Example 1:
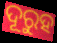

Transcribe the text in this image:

ଦୂରୁହ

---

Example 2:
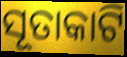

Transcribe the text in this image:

ସୂତାକାଟି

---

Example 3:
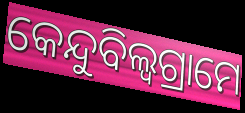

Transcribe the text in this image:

କେନ୍ଦୁବିଲ୍ଵଗ୍ରାମେ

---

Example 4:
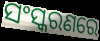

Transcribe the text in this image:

ସଂସ୍କରଣରେ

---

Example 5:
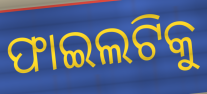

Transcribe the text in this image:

ଫାଇଲଟିକୁ